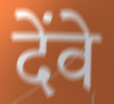
देंवे